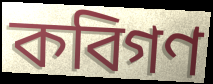
কবিগণ